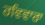
ਰਵਿਵਾਰਾ